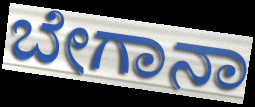
ಬೇಗಾನಾ